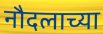
नौदलाच्या